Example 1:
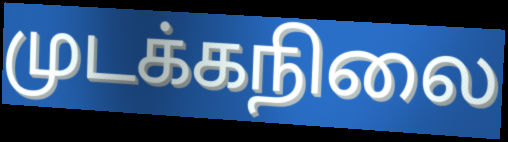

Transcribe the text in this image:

முடக்கநிலை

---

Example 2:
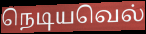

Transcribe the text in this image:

நெடியவெல்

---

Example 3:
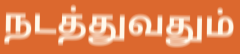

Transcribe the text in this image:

நடத்துவதும்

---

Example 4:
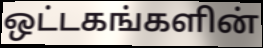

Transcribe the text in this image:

ஒட்டகங்களின்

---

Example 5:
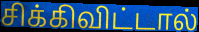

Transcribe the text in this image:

சிக்கிவிட்டால்